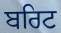
ਬਰਿਟ